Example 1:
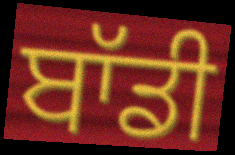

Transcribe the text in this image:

ਬਾੱਡੀ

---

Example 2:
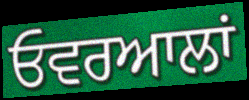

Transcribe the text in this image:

ਓਵਰਆਲਾਂ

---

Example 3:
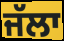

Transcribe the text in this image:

ਜੱਲਾ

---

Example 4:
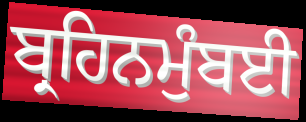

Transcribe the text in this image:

ਬ੍ਰਹਿਨਮੁੰਬਈ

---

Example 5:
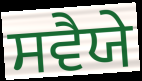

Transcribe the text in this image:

ਸਵੈਯੇ